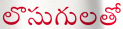
లొసుగులతో